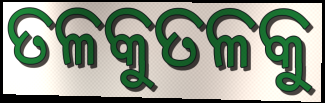
ତଳକୁତଳକୁ